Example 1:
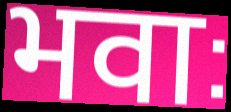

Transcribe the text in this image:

भवाः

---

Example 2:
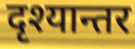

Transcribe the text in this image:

दृश्यान्तर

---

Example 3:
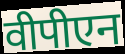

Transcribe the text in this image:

वीपीएन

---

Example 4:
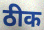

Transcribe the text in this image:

ठीक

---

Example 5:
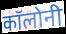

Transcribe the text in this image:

कॉलोनी